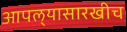
आपल्यासारखीच